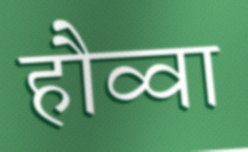
हौव्वा